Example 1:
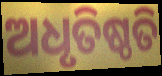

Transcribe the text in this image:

ଅଧୃତିଷ୍ଠତି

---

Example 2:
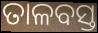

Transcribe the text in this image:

ତାଳବସ୍ତ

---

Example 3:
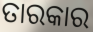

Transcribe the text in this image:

ତାରକାର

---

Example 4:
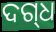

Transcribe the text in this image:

ଦଗ୍‌ଧ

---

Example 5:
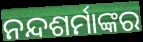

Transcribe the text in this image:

ନନ୍ଦଶର୍ମାଙ୍କର